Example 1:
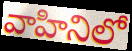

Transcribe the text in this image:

వాహినిలో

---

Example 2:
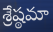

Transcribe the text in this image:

శ్రేష్ఠమా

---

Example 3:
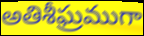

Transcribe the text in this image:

అతిశీఘ్రముగా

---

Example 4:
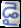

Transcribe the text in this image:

డై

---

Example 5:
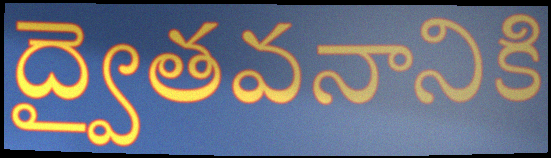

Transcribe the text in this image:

ద్వైతవనానికి